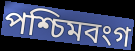
পশ্চিমবংগ